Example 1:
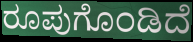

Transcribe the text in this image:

ರೂಪುಗೊಂಡಿದೆ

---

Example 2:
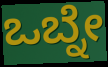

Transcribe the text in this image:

ಒಬ್ನೇ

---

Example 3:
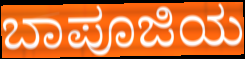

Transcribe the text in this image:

ಬಾಪೂಜಿಯ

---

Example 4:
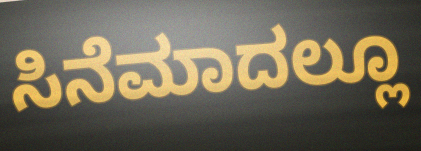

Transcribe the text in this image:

ಸಿನೆಮಾದಲ್ಲೂ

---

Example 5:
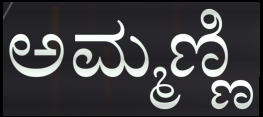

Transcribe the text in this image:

ಅಮ್ಮಣ್ಣಿ